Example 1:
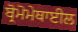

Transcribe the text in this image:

ਬ੍ਰੋਮੋਮੇਥਾਈਲ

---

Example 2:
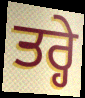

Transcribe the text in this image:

ਤਰ੍ਹੇ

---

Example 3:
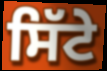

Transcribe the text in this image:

ਸਿੱਟੇ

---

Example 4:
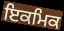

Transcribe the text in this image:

ਇਕਮਿਕ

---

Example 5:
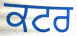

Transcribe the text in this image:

ਕਟਰ